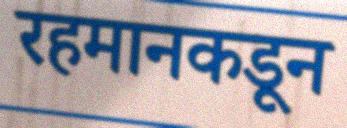
रहमानकडून